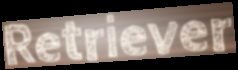
Retriever